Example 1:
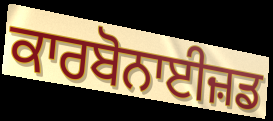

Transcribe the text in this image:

ਕਾਰਬੋਨਾਈਜ਼ਡ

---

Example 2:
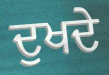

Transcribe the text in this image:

ਦੁਖਦੇ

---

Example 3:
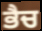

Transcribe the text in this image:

ਭੈਚ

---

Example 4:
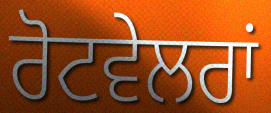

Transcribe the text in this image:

ਰੋਟਵੇਲਰਾਂ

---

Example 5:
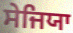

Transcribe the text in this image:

ਸੇਜਿਯਾ